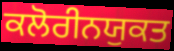
ਕਲੋਰੀਨਯੁਕਤ